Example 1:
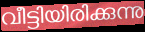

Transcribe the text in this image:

വീട്ടിയിരിക്കുന്നു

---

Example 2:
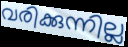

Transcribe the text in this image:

വരിക്കുന്നില്ല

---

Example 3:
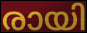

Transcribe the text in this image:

രായി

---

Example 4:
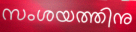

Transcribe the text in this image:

സംശയത്തിനു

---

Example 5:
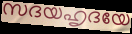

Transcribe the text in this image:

സദയഹൃദയേ